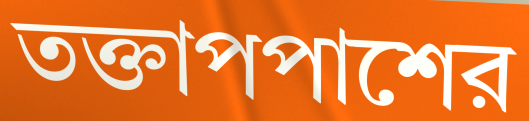
তক্তাপপাশের